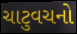
ચાટુવચનો